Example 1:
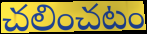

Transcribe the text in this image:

చలించటం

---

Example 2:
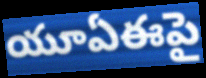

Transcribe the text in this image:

యూఏఈపై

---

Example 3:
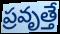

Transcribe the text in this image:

ప్రవృత్తే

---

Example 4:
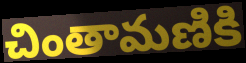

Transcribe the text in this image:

చింతామణికి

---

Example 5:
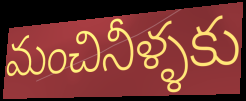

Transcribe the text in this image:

మంచినీళ్ళకు